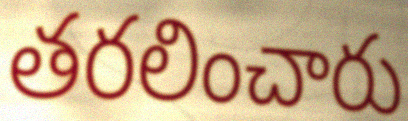
తరలించారు